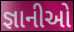
જ્ઞાનીઓ